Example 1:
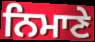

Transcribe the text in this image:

ਨਿਮਾਣੇ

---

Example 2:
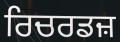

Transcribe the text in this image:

ਰਿਚਰਡਜ਼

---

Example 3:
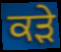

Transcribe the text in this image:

ਕੜੇ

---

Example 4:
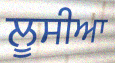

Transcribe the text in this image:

ਲੂਸੀਆ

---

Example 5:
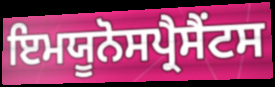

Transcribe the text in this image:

ਇਮਯੂਨੋਸਪ੍ਰੈਸੈਂਟਸ